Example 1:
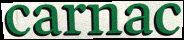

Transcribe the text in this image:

carnac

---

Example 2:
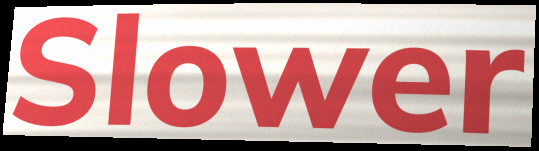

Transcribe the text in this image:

Slower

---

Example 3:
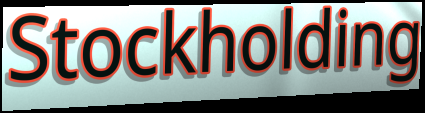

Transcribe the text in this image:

Stockholding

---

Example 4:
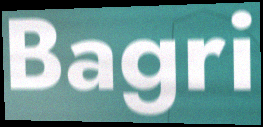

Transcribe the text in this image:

Bagri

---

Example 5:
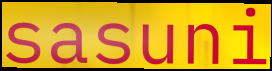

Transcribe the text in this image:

sasuni